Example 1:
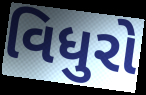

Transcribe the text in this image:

વિધુરો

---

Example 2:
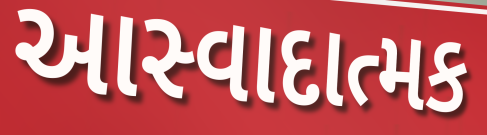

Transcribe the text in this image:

આસ્વાદાત્મક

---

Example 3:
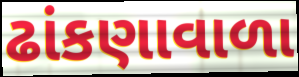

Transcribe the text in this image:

ઢાંકણાવાળા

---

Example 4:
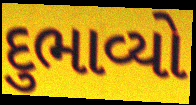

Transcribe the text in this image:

દુભાવ્યો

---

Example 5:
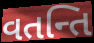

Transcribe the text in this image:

વતન્તિ